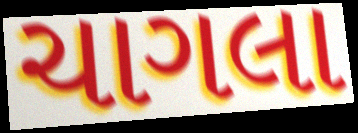
ચાગલા